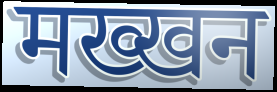
मख्खन